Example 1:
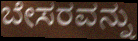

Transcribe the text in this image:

ಬೇಸರವನ್ನು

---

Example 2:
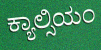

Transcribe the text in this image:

ಕ್ಯಾಲ್ಸಿಯಂ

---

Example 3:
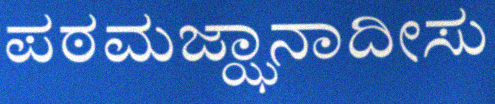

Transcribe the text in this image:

ಪಠಮಜ್ಝಾನಾದೀಸು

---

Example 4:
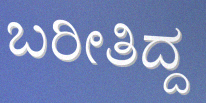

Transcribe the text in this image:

ಬರೀತಿದ್ದ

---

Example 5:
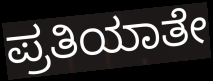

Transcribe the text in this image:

ಪ್ರತಿಯಾತೇ